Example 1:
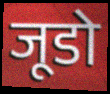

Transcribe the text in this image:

जूडो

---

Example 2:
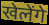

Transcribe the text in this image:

खेलेंगे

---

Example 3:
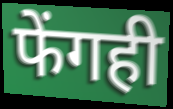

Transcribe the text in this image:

फेंगही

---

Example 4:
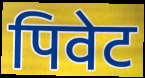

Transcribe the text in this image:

पिवेट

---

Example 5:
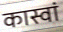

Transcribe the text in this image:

कास्वां